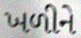
ખળીને